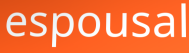
espousal